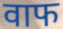
वाफ